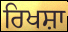
ਰਿਖਸ਼ਾ